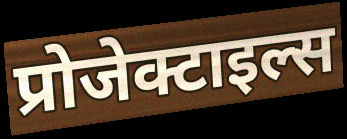
प्रोजेक्टाइल्स